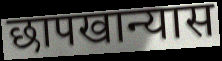
छापखान्यास